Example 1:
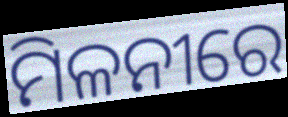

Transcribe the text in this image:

ମିଳନୀରେ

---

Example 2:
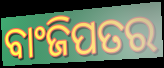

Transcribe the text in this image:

ବାଂଜିପତର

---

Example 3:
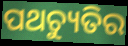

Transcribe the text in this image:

ପଥଚ୍ୟୁତିର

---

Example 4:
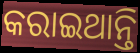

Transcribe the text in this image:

କରାଇଥାନ୍ତି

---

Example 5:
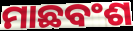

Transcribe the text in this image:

ମାଛବଂଶ